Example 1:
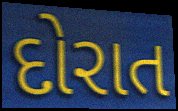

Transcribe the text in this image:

દોરાત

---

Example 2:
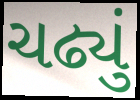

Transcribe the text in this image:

ચઢ્યું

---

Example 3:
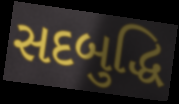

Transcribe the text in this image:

સદબુદ્ધિ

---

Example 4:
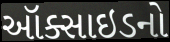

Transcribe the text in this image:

ઑક્સાઇડનો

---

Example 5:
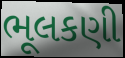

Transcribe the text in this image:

ભૂલકણી